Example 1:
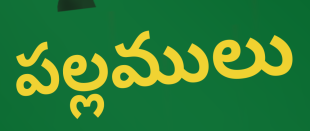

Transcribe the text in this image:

పల్లములు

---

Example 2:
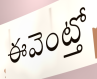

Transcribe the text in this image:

ఈవెంట్తో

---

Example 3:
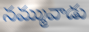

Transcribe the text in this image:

నమ్మువాడు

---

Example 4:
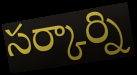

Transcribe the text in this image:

సర్కార్ని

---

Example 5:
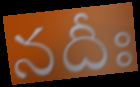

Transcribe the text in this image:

నదీః